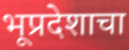
भूप्रदेशाचा